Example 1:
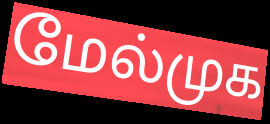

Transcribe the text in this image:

மேல்முக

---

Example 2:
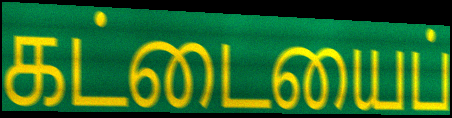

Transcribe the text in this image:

கட்டையைப்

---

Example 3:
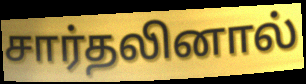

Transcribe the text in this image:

சார்தலினால்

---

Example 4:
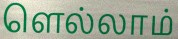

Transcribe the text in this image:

ளெல்லாம்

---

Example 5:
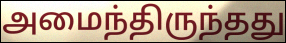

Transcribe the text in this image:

அமைந்திருந்தது